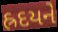
હ્રદયને